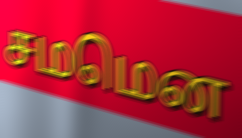
சமமென